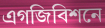
এগজিবিশনে